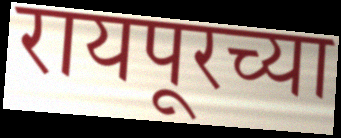
रायपूरच्या